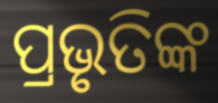
ପ୍ରଭୃତିଙ୍କ